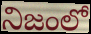
నిజంలో